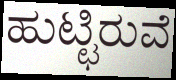
ಹುಟ್ಟಿರುವೆ